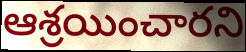
ఆశ్రయించారని